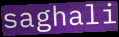
saghali